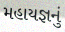
મહાયજ્ઞનું